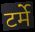
टर्मे